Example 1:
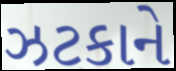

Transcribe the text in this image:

ઝટકાને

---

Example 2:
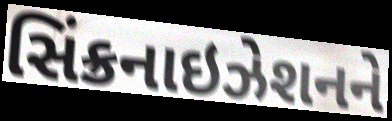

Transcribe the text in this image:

સિંક્રનાઇઝેશનને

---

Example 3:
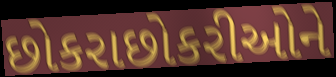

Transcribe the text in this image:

છોકરાછોકરીઓને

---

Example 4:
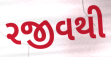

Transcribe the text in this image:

રજીવથી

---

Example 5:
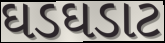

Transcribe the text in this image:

ઘડઘડાટ